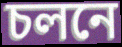
চলনে